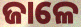
ଜାଳେ